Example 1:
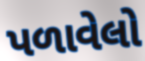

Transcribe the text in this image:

પળાવેલો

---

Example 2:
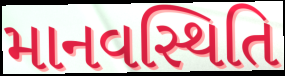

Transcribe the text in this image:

માનવસ્થિતિ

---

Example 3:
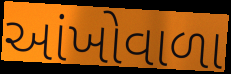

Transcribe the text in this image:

આંખોવાળા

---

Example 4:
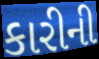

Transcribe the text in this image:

કારીની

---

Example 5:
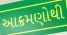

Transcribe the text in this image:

આક્રમણોથી